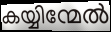
കയ്യിന്മേൽ